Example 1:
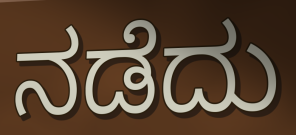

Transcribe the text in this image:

ನಡೆದು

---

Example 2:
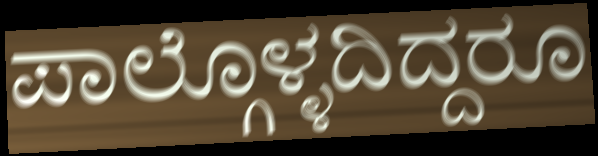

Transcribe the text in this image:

ಪಾಲ್ಗೊಳ್ಳದಿದ್ದರೂ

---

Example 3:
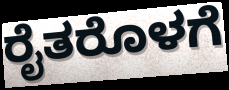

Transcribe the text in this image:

ರೈತರೊಳಗೆ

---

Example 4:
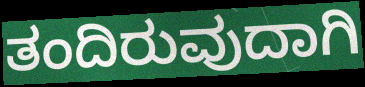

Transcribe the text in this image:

ತಂದಿರುವುದಾಗಿ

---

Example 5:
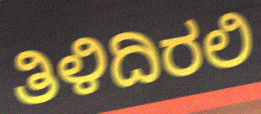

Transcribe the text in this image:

ತಿಳಿದಿರಲಿ